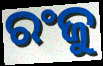
ରଂଜୁ